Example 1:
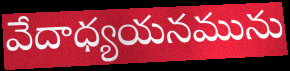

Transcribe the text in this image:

వేదాధ్యయనమును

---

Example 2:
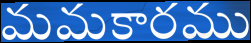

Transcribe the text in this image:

మమకారము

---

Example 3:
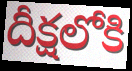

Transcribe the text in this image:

దీక్షలోకి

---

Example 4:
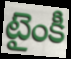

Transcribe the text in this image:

టైంకీ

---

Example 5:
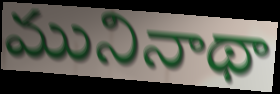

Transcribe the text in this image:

మునినాథా